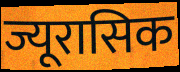
ज्यूरासिक